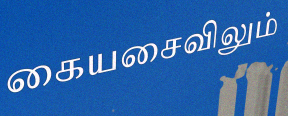
கையசைவிலும்